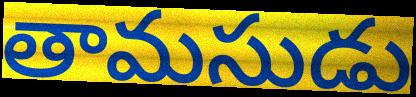
తామసుడు